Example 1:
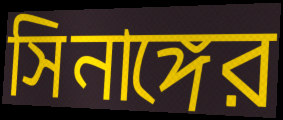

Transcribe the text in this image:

সিনাঙ্গের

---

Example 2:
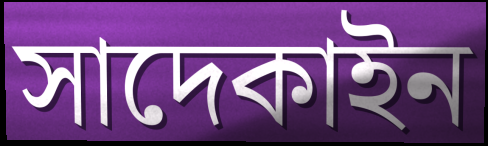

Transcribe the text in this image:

সাদেকাইন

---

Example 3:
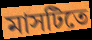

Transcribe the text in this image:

মাসটিতে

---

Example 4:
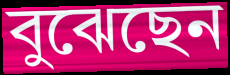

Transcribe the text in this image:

বুঝেছেন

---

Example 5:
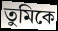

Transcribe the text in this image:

তুমিকে